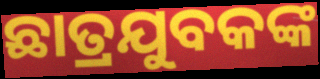
ଛାତ୍ରଯୁବକଙ୍କ